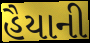
હૈયાની